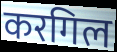
करगिल